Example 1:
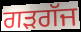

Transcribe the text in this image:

ਗਡ਼ਗੱਜ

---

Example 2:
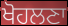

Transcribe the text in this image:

ਖੋਹਲਣਾ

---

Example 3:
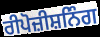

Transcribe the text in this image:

ਰੀਪੋਜ਼ੀਸ਼ਨਿੰਗ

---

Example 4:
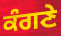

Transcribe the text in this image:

ਕੰਗਣੇ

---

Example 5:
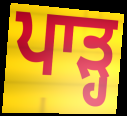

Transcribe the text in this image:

ਪਾੜ੍ਹ